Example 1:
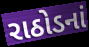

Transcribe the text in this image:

રાઠોડનાં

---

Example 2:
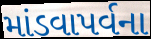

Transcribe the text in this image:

માંડવાપર્વના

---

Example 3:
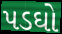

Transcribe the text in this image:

પડઘો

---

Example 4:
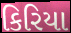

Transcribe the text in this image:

કિરિયા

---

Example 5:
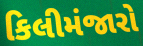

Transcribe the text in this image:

કિલીમંજારો